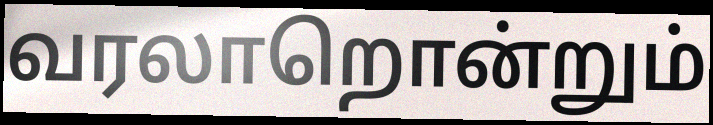
வரலாறொன்றும்